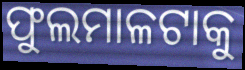
ଫୁଲମାଳଟାକୁ